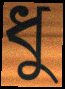
ধু